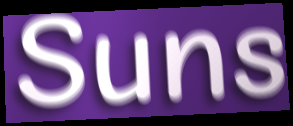
Suns